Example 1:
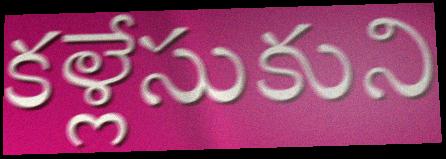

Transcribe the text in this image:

కళ్లేసుకుని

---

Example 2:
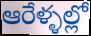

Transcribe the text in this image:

ఆరేళ్ళల్లో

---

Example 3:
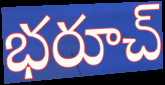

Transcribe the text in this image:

భరూచ్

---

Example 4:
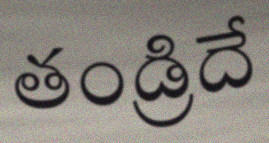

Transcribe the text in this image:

తండ్రిదే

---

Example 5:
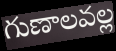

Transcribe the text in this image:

గుణాలవల్ల